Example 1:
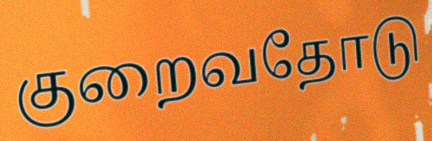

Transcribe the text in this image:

குறைவதோடு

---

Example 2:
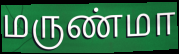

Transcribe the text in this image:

மருண்மா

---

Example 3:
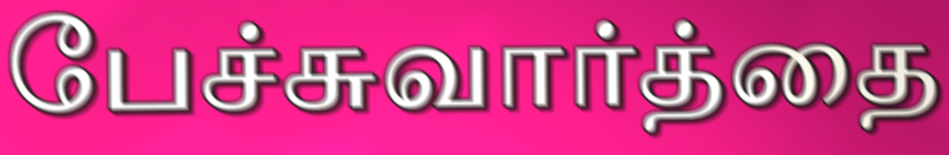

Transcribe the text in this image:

பேச்சுவார்த்தை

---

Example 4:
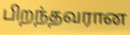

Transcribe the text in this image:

பிறந்தவரான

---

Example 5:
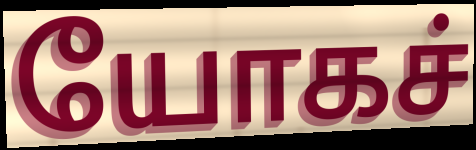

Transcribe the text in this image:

யோகச்